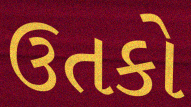
ઉતકો